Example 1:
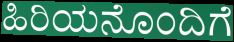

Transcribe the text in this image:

ಹಿರಿಯನೊಂದಿಗೆ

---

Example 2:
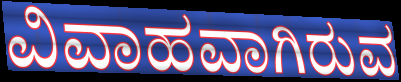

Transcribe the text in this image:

ವಿವಾಹವಾಗಿರುವ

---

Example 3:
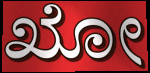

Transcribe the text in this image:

ಖೋ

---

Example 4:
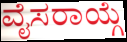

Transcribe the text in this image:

ವೈಸರಾಯ್ಗೆ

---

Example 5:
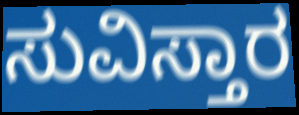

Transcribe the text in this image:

ಸುವಿಸ್ತಾರ